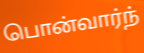
பொன்வார்ந்